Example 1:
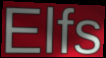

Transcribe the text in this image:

Elfs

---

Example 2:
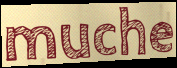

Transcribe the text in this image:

muche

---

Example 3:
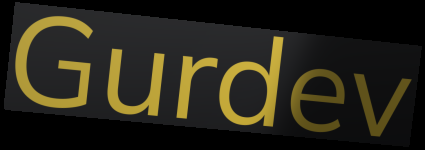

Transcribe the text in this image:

Gurdev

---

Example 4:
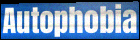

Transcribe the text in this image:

Autophobia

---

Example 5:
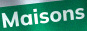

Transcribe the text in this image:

Maisons